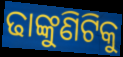
ଢାଙ୍କୁଣିଟିକୁ